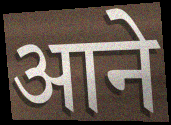
आने